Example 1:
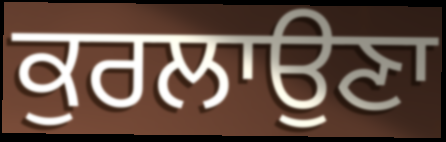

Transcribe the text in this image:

ਕੁਰਲਾਉਣਾ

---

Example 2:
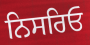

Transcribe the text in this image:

ਨਿਸਰਿਓ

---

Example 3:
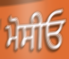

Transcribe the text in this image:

ਮੋਸੀਓ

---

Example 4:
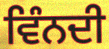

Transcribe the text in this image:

ਵਿੰਨਦੀ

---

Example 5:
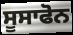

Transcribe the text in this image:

ਸੂਸਾਫੋਨ